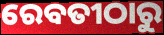
ରେବତୀଠାରୁ